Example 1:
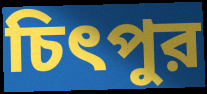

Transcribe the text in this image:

চিৎপুর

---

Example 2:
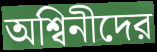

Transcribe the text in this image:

অশ্বিনীদের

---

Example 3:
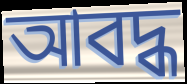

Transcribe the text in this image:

আবদ্ধ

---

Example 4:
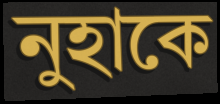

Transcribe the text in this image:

নুহাকে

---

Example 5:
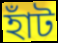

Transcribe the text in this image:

হাঁট